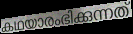
കഥയാരംഭിക്കുന്നത്